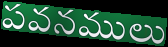
పవనములు